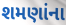
શમણાંના